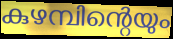
കുഴമ്പിന്റെയും